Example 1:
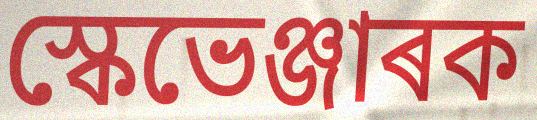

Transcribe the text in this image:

স্কেভেঞ্জাৰক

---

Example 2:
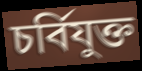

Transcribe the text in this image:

চৰ্বিযুক্ত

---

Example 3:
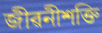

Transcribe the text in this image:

জীৱনীশক্তি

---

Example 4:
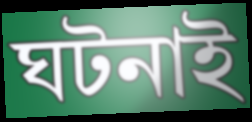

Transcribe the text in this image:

ঘটনাই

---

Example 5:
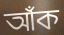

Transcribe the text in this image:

আঁক